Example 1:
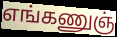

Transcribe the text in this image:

எங்கணுஞ்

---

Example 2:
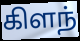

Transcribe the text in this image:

கிளந்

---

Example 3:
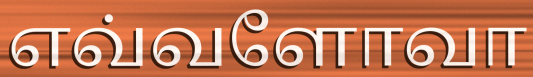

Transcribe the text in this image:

எவ்வளோவா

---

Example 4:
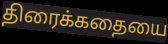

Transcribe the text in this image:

திரைக்கதையை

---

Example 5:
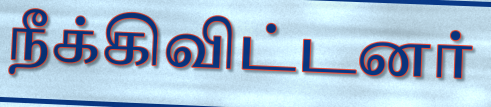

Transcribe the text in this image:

நீக்கிவிட்டனர்